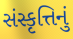
સંસ્કૃત્તિનું